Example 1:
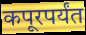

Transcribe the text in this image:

कपूरपर्यंत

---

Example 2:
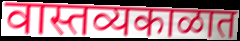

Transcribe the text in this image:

वास्तव्यकाळात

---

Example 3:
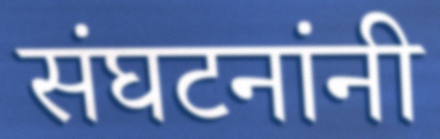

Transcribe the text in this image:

संघटनांनी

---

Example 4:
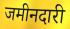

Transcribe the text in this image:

जमीनदारी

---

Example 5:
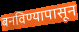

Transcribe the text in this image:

बनविण्यापासून